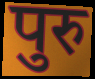
पुरु